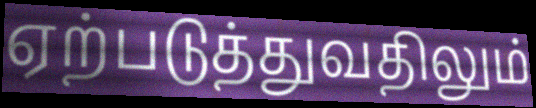
ஏற்படுத்துவதிலும்